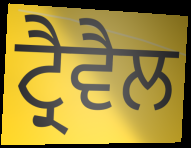
ਟ੍ਰੈਵੈਲ